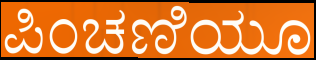
ಪಿಂಚಣಿಯೂ